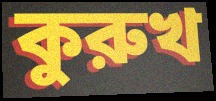
কুরুখ